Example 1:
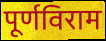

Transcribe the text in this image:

पूर्णविराम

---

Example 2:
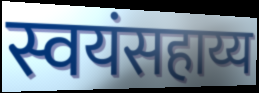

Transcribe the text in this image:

स्वयंसहाय्य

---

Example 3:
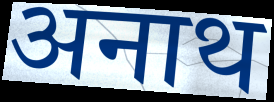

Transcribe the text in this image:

अनाथ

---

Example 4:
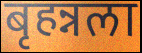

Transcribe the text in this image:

बृहन्नला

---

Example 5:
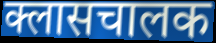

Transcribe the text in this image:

क्‍लासचालक